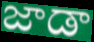
జాడా